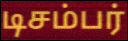
டிசம்பர்